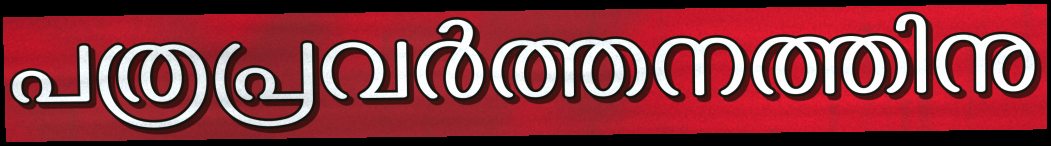
പത്രപ്രവർത്തനത്തിനു